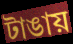
টাঙায়